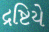
દ્રષ્ટિયે